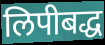
लिपीबद्ध